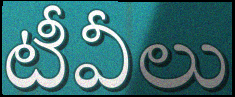
టీవీలు